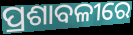
ପ୍ରଶାବଳୀରେ